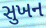
સુખન